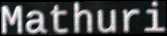
Mathuri